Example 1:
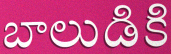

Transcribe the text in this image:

బాలుడికి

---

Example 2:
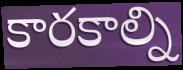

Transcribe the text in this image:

కారకాల్ని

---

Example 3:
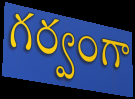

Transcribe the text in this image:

గర్వంగా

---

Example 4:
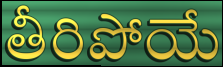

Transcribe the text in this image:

తీరిపోయే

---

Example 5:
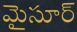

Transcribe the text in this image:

మైసూర్